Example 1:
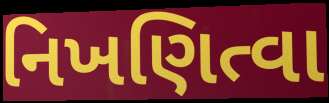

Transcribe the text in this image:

નિખણિત્વા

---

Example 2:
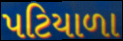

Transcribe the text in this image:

પટિયાળા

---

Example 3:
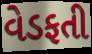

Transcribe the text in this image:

વેડફતી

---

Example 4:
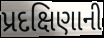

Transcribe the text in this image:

પ્રદક્ષિણાની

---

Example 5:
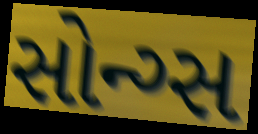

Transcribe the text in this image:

સોન્ગ્સ